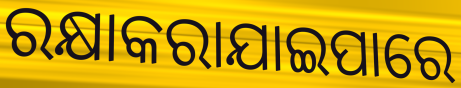
ରକ୍ଷାକରାଯାଇପାରେ